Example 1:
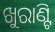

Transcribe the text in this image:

ଖୁରାଣ୍ଟି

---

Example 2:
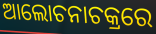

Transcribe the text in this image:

ଆଲୋଚନାଚକ୍ରରେ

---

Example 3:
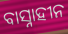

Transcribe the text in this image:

ବାସ୍ନାହୀନ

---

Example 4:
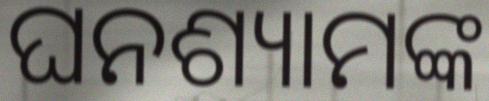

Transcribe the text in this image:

ଘନଶ୍ୟାମଙ୍କ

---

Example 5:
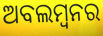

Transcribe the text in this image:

ଅବଲମ୍ବନର